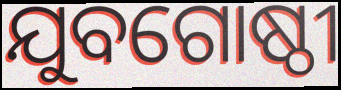
ଯୁବଗୋଷ୍ଠୀ